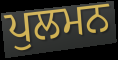
ਪੁਲਮਨ